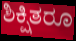
ಶಿಕ್ಷಿತರೂ